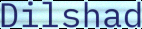
Dilshad